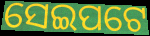
ସେଇପଟେ